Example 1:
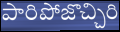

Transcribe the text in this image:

పారిపోజొచ్చిరి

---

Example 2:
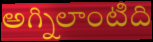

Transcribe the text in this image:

అగ్నిలాంటిది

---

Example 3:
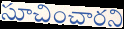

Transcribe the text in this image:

సూచించారని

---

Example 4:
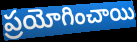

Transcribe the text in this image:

ప్రయోగించాయి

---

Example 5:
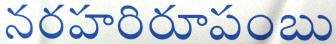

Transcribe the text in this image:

నరహరిరూపంబు